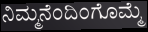
ನಿಮ್ಮನೆಂದಿಂಗೊಮ್ಮೆ